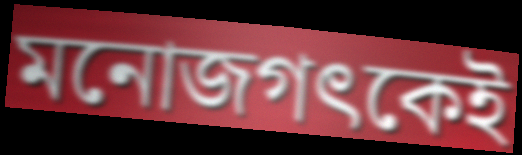
মনোজগৎকেই